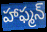
హాఫ్మన్